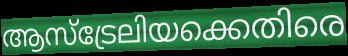
ആസ്ട്രേലിയക്കെതിരെ